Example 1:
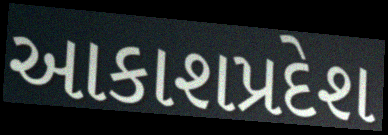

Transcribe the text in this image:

આકાશપ્રદેશ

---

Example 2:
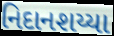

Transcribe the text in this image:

નિદાનશય્યા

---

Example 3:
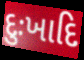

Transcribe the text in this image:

દુઃખાદિ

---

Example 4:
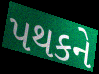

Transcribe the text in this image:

પથકને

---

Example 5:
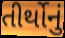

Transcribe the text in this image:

તીર્થોનું